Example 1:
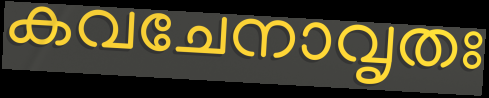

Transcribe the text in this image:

കവചേനാവൃതഃ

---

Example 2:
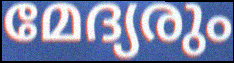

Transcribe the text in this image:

മേദ്യരും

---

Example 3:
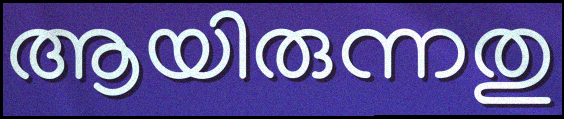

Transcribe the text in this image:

ആയിരുന്നതു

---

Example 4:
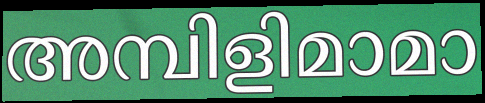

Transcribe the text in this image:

അമ്പിളിമാമാ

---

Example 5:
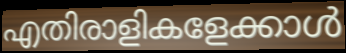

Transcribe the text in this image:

എതിരാളികളേക്കാൾ